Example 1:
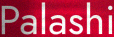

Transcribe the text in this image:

Palashi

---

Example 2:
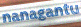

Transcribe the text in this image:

nanagantu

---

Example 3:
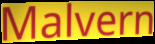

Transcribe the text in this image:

Malvern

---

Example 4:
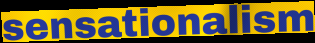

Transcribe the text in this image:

sensationalism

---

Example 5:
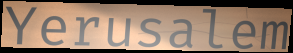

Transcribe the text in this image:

Yerusalem